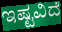
ಇಷ್ಟವಿದೆ